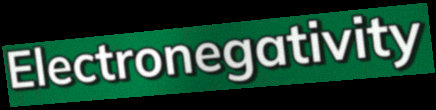
Electronegativity